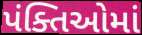
પંક્તિઓમાં